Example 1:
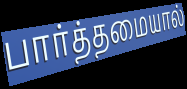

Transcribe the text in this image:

பார்த்தமையால்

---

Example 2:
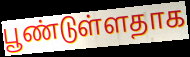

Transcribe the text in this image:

பூண்டுள்ளதாக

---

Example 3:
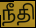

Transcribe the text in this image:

நீதி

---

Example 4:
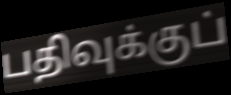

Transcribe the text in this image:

பதிவுக்குப்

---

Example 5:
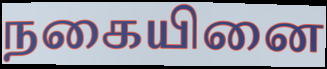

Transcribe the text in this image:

நகையினை